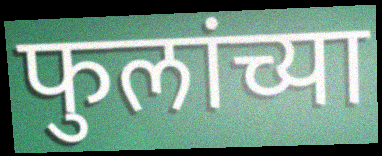
फुलांच्या